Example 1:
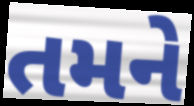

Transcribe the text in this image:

તમને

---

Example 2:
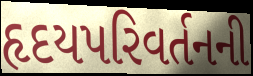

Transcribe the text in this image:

હૃદયપરિવર્તનની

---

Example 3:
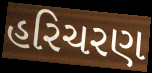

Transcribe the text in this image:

હરિચરણ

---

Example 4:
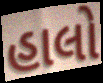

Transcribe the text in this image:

હાલો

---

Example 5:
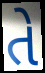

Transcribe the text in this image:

તે